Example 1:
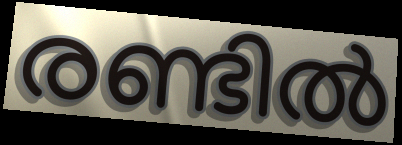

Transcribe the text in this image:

രണ്ടിൽ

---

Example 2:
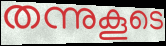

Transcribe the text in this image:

തന്നുകൂടെ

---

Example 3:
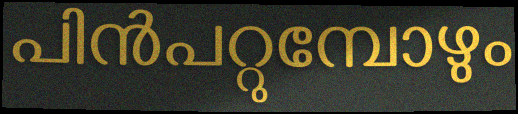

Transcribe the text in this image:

പിൻപറ്റുമ്പോഴും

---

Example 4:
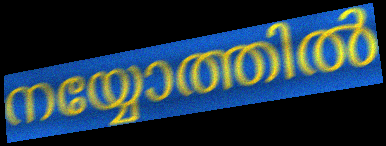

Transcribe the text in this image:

നയ്യോത്തിൽ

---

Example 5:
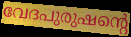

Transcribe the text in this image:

വേദപുരുഷന്റെ